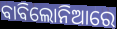
ବାବିଲୋନିଆରେ